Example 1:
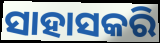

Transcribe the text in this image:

ସାହାସକରି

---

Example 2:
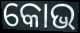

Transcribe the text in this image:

କୋଭ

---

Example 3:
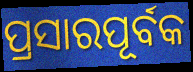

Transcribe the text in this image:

ପ୍ରସାରପୂର୍ବକ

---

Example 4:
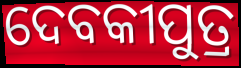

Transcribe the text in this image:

ଦେବକୀପୁତ୍ର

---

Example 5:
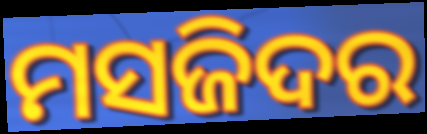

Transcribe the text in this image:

ମସଜିଦର